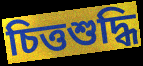
চিত্তশুদ্ধি